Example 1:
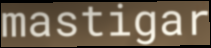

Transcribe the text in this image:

mastigar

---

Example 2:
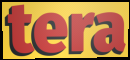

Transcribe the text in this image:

tera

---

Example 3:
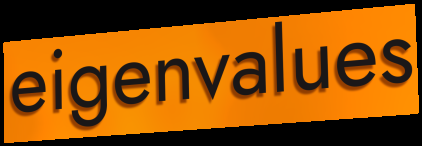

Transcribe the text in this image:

eigenvalues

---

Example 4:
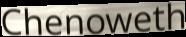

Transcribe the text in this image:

Chenoweth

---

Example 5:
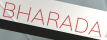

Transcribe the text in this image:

BHARADA